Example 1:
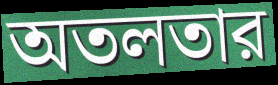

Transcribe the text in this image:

অতলতার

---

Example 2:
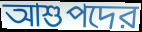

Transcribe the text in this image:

আশুপদের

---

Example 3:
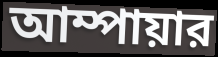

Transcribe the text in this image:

আম্পায়ার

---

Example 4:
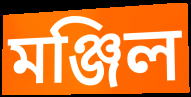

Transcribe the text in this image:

মঞ্জিল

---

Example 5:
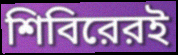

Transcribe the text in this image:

শিবিরেরই